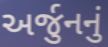
અર્જુનનું